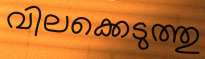
വിലക്കെടുത്തു